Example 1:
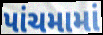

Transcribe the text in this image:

પાંચમામાં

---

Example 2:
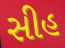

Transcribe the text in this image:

સીહ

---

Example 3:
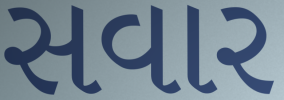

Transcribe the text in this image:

સવાર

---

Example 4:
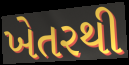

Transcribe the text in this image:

ખેતરથી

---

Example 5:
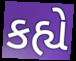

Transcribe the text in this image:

કહ્યે